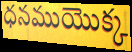
ధనముయొక్క